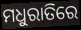
ମଧୁରାତିରେ